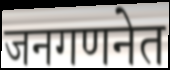
जनगणनेत